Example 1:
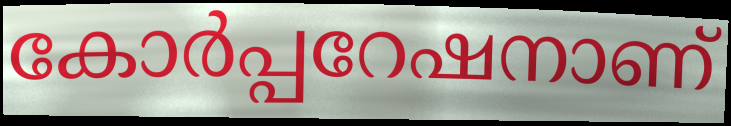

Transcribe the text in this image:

കോർപ്പറേഷനാണ്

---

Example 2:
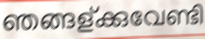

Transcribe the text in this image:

ഞങ്ങള്ക്കുവേണ്ടി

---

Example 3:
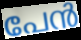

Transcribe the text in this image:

പേൻ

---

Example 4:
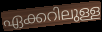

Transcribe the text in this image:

ഏക്കറിലുള്ള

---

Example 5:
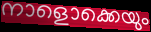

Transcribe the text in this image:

നാളൊക്കെയും